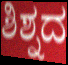
ಶಿಶ್ನದ